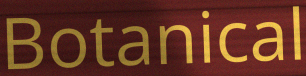
Botanical